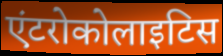
एंटरोकोलाइटिस